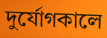
দুর্যোগকালে